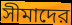
সীমাদের